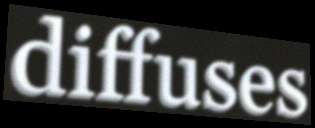
diffuses